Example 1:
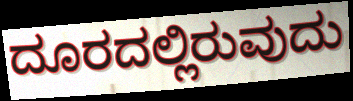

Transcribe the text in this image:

ದೂರದಲ್ಲಿರುವುದು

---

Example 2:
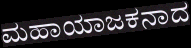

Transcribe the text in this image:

ಮಹಾಯಾಜಕನಾದ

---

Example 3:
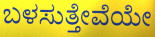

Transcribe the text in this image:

ಬಳಸುತ್ತೇವೆಯೇ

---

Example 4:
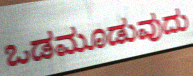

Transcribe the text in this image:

ಒಡಮೂಡುವುದು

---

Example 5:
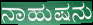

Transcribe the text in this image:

ನಾಹುಷನು